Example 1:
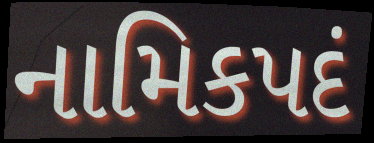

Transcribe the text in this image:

નામિકપદં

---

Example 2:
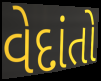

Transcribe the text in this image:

વેદાંતો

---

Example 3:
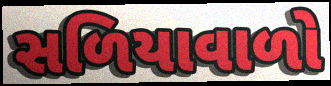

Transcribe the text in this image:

સળિયાવાળો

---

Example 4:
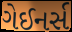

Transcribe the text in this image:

ગેઈનર્સ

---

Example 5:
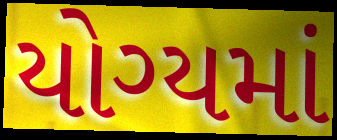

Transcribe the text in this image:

યોગ્યમાં